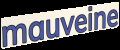
mauveine